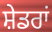
ਸ਼ੇਡਰਾਂ